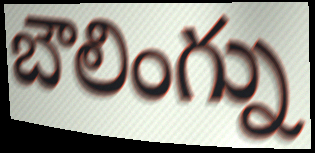
బౌలింగ్ను